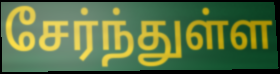
சேர்ந்துள்ள